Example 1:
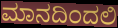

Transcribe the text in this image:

ಮಾನದಿಂದಲಿ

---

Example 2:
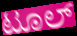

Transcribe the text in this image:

ಟೂಲ್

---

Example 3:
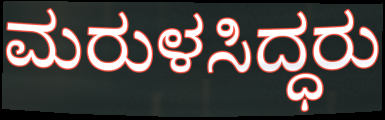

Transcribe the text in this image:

ಮರುಳಸಿದ್ಧರು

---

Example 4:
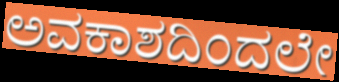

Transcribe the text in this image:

ಅವಕಾಶದಿಂದಲೇ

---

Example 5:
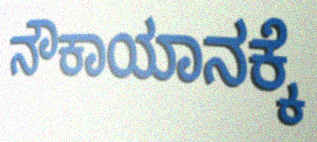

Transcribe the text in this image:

ನೌಕಾಯಾನಕ್ಕೆ